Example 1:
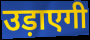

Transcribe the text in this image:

उड़ाएगी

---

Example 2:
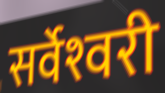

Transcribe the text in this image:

सर्वेश्वरी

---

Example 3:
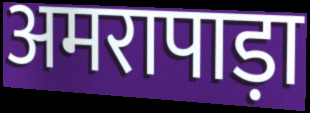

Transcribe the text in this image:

अमरापाड़ा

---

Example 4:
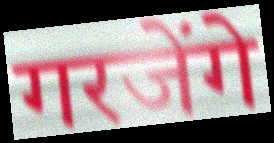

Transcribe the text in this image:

गरजेंगे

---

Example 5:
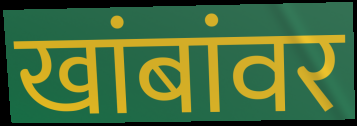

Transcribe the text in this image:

खांबांवर